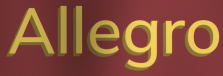
Allegro